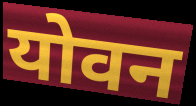
योवन